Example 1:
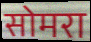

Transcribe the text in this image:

सोमरा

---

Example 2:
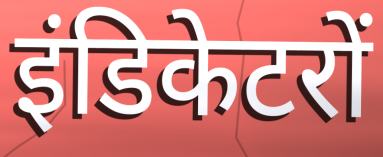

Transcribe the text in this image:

इंडिकेटरों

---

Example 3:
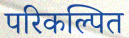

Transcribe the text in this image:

परिकल्पित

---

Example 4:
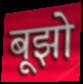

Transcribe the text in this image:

बूझो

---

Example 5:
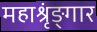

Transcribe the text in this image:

महाश्रृंङ्गार